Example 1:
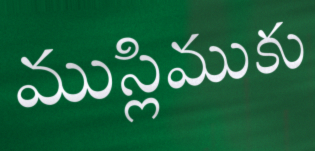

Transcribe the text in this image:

ముస్లిముకు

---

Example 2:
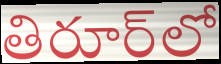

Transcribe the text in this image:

తిరూర్‌లో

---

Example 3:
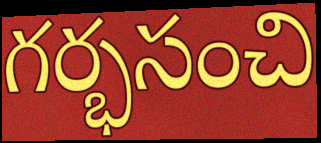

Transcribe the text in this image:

గర్భసంచి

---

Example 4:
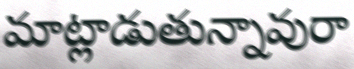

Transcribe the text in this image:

మాట్లాడుతున్నావురా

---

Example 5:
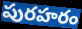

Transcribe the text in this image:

పురహరం